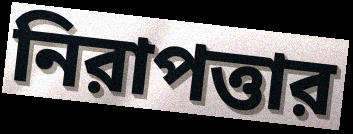
নিরাপত্তার